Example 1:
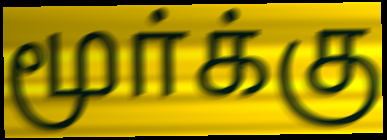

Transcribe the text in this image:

மூர்க்கு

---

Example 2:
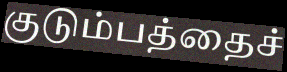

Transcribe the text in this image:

குடும்பத்தைச்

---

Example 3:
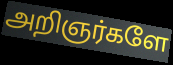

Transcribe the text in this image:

அறிஞர்களே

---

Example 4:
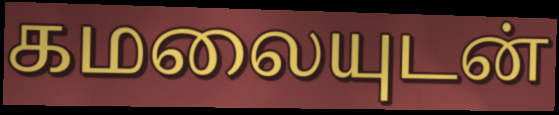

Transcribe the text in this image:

கமலையுடன்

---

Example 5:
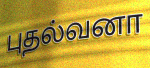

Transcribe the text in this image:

புதல்வனா